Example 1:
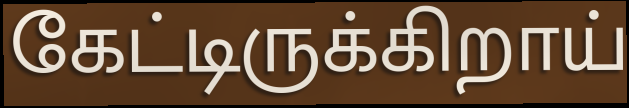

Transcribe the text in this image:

கேட்டிருக்கிறாய்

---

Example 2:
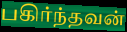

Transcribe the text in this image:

பகிர்ந்தவன்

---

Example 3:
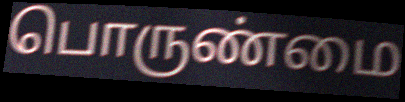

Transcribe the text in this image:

பொருண்மை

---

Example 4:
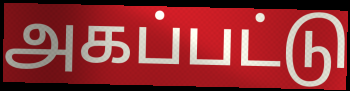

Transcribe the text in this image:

அகப்பட்டு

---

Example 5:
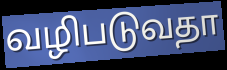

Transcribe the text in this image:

வழிபடுவதா